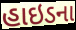
હાઇડના